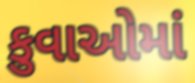
કુવાઓમાં